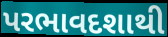
પરભાવદશાથી